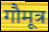
गौमूत्र